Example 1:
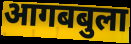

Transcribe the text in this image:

आगबबुला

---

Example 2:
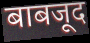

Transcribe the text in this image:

बाबजूद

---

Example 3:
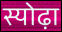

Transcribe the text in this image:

स्योढ़ा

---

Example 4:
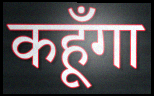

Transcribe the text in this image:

कहूँगा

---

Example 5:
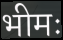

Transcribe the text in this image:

भीमः